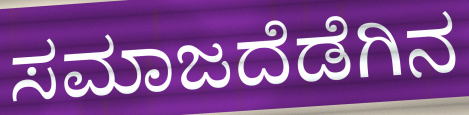
ಸಮಾಜದೆಡೆಗಿನ